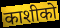
काशीको